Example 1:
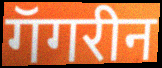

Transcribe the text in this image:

गॅगरीन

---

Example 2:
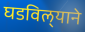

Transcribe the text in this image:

घडविल्याने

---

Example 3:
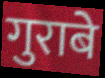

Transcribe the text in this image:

गुराबे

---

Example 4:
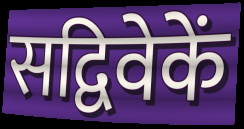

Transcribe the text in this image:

सद्विवेकें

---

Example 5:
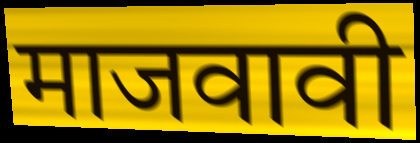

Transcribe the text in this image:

माजवावी